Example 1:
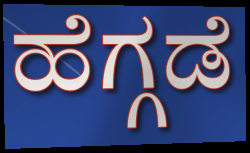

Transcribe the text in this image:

ಹೆಗ್ಗಡೆ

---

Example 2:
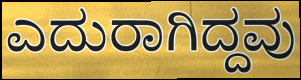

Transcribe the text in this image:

ಎದುರಾಗಿದ್ದವು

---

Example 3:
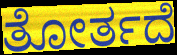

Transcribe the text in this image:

ತೋರ್ತದೆ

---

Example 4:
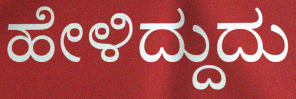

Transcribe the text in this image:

ಹೇಳಿದ್ದುದು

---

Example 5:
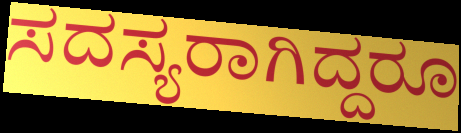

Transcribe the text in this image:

ಸದಸ್ಯರಾಗಿದ್ದರೂ